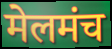
मेलमंच